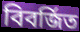
বিবর্জিত